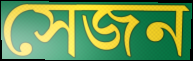
সেজন